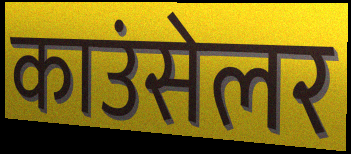
काउंसेलर